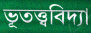
ভূতত্ত্ববিদ্যা